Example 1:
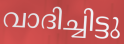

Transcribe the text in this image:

വാദിച്ചിട്ടു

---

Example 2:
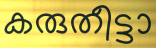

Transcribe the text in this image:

കരുതീട്ടാ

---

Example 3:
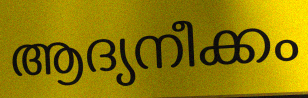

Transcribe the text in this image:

ആദ്യനീക്കം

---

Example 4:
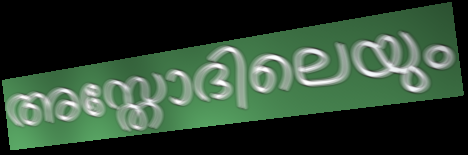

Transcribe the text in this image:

അസ്തോദിലെയും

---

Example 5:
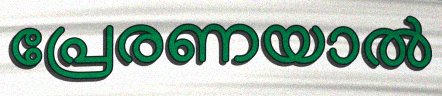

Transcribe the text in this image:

പ്രേരണയാൽ